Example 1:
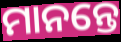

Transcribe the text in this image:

ମାନନ୍ତେ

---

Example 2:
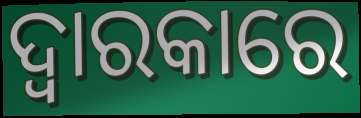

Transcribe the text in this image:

ଦ୍ବାରକାରେ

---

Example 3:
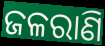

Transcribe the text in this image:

ଜଳରାଣି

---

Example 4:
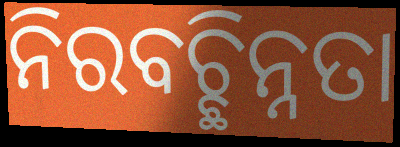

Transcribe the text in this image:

ନିରବଚ୍ଛିନ୍ନତା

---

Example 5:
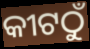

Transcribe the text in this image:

କୀଟଠୁଁ